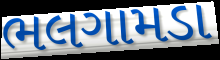
ભલગામડા